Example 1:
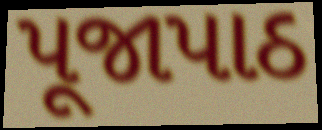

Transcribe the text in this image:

પૂજાપાઠ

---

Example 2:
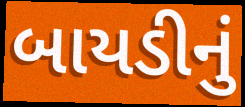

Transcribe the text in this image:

બાયડીનું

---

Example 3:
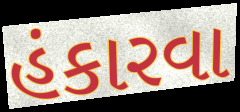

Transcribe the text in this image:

હંકારવા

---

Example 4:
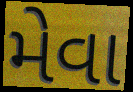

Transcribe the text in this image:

મેવા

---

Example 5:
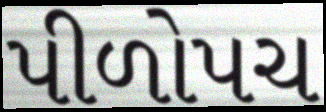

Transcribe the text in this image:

પીળોપચ